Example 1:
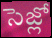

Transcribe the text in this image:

సెజ్లో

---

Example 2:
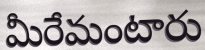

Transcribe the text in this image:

మీరేమంటారు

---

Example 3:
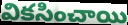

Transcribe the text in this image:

వికసించాయి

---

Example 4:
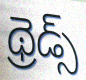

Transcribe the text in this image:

థ్రెడ్స్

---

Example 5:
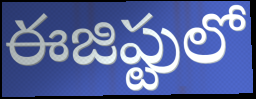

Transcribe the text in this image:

ఈజిప్టులో